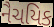
નૈચયિક